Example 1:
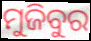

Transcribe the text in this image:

ମୁଜିବୁର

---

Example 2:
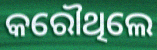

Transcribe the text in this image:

କରୌଥିଲେ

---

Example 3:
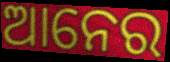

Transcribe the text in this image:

ଆନେର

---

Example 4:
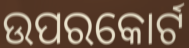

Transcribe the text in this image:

ଉପରକୋର୍ଟ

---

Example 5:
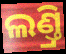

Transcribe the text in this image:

ଲଣ୍ତ୍ରି